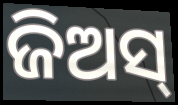
ଜିଅସ୍